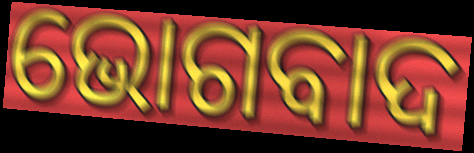
ଭୋଗବାଦ